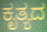
ಕೃತ್ಯದ